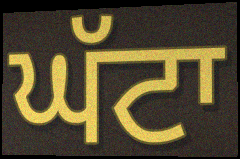
ਘੱਟਾ